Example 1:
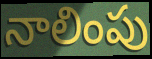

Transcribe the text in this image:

నాలింపు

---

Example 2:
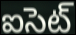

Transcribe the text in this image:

ఐసెట్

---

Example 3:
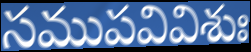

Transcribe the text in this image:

సముపవివిశుః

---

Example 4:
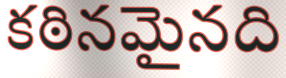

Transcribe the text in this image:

కఠినమైనది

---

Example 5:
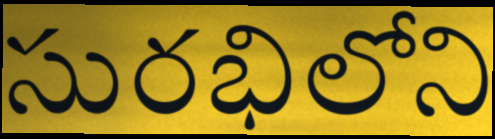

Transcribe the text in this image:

సురభిలోని